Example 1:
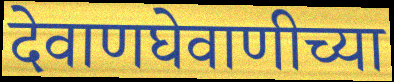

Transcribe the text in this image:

देवाणघेवाणीच्या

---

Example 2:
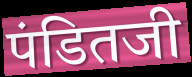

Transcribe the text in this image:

पंडितजी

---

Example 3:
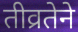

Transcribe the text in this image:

तीव्रतेने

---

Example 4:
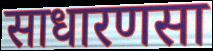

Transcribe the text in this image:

साधारणसा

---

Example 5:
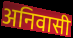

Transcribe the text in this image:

अनिवासी